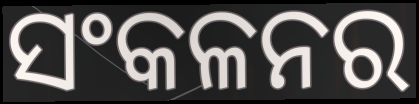
ସଂକଳନର